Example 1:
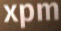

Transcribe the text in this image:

xpm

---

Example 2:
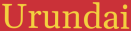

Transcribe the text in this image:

Urundai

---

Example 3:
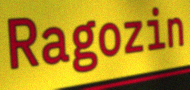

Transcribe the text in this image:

Ragozin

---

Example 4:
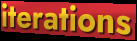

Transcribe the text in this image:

iterations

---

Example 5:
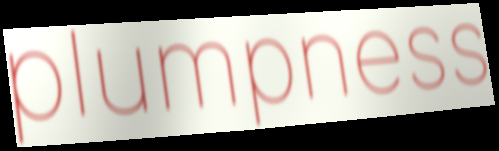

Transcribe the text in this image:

plumpness